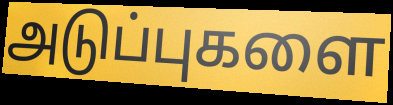
அடுப்புகளை